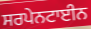
ਸਰਪੇਨਟਾਈਨ